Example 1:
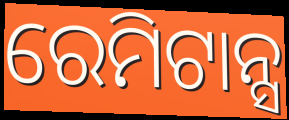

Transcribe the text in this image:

ରେମିଟାନ୍ସ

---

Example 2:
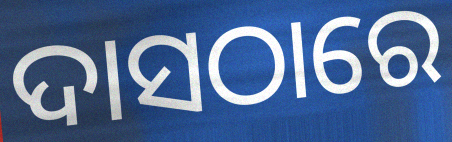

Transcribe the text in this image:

ଦାସଠାରେ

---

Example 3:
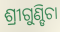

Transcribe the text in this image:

ଶ୍ରୀଗୁଣ୍ଡିଚା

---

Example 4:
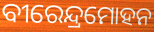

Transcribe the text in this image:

ବୀରେନ୍ଦ୍ରମୋହନ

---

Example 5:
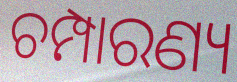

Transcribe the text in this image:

ଚମ୍ପାରଣ୍ୟ